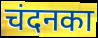
चंदनका